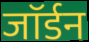
जॉर्डन